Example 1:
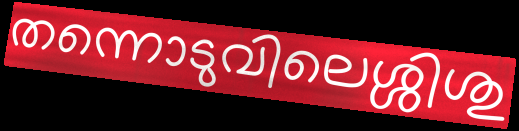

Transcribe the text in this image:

തന്നൊടുവിലെശ്ശിശു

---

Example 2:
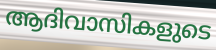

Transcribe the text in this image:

ആദിവാസികളുടെ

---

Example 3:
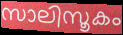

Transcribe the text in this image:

സാലിസൂകം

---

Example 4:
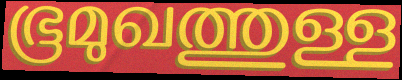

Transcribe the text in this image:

ഭൂമുഖത്തുള്ള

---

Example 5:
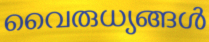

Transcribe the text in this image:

വൈരുധ്യങ്ങൾ